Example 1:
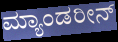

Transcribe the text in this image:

ಮ್ಯಾಂಡರೀನ್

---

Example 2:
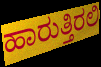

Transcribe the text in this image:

ಹಾರುತ್ತಿರಲಿ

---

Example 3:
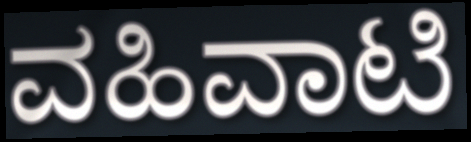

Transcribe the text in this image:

ವಹಿವಾಟಿ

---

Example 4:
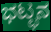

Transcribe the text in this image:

ಭಟ್ಟನ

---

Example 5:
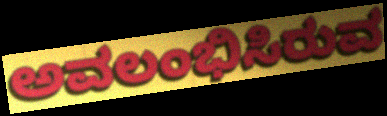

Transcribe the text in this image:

ಅವಲಂಭಿಸಿರುವ